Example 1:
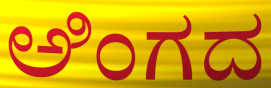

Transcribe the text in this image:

ಅಿಂಗದ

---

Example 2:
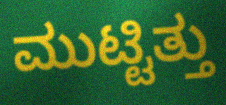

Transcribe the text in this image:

ಮುಟ್ಟಿತ್ತು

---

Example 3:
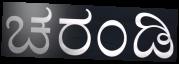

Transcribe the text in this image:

ಚರಂಡಿ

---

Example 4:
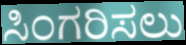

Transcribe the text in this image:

ಸಿಂಗರಿಸಲು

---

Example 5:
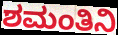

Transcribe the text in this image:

ಶಮಂತಿನಿ